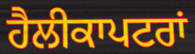
ਹੈਲੀਕਾਪਟਰਾਂ